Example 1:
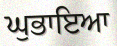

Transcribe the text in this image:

ਘੁਭਾਇਆ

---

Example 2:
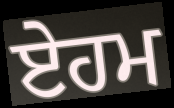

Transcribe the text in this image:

ਏਹਮ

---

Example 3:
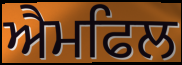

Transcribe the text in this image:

ਐਮਫਿਲ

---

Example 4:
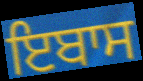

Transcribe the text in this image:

ਇਬਾਸ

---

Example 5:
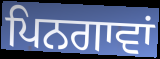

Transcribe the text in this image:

ਪਿਨਗਾਵਾਂ